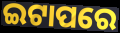
ଇଟାପରେ